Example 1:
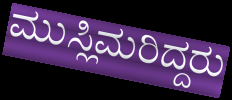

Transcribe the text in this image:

ಮುಸ್ಲಿಮರಿದ್ದರು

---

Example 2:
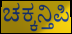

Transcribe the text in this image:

ಚಕ್ಕನ್ತಿಪಿ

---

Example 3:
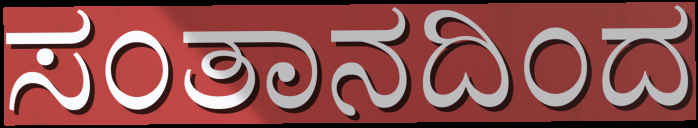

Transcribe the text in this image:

ಸಂತಾನದಿಂದ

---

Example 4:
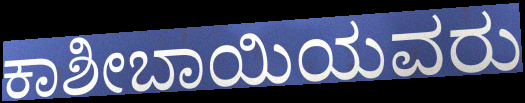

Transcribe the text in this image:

ಕಾಶೀಬಾಯಿಯವರು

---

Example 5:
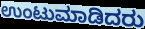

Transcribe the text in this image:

ಉಂಟುಮಾಡಿದರು